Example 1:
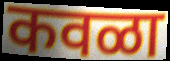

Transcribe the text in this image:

कवळा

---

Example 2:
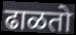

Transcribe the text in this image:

ढाळतो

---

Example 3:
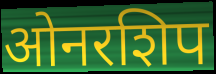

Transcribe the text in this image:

ओनरशिप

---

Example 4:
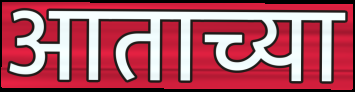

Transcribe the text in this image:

आताच्या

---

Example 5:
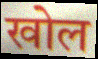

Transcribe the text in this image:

खोल